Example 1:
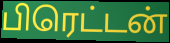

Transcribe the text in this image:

பிரெட்டன்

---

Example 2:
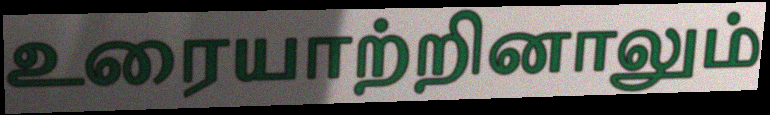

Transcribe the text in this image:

உரையாற்றினாலும்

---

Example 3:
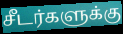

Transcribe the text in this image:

சீடர்களுக்கு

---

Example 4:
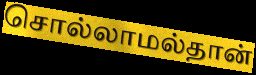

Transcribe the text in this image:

சொல்லாமல்தான்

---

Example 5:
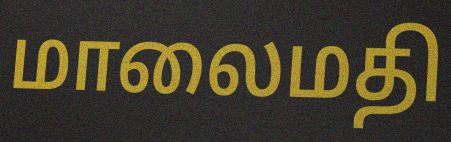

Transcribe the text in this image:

மாலைமதி